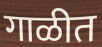
गाळीत